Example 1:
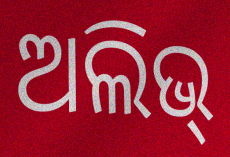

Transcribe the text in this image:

ଅଲିଭ୍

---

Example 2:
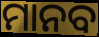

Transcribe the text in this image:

ମାନବ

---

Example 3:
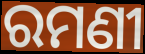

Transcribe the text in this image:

ରମଣୀ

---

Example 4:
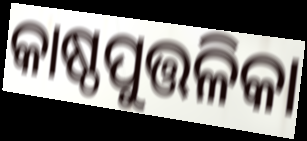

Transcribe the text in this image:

କାଷ୍ଠପୁତ୍ତଳିକା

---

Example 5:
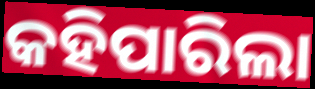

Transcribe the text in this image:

କହିପାରିଲା